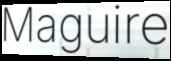
Maguire